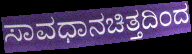
ಸಾವಧಾನಚಿತ್ತದಿಂದ